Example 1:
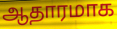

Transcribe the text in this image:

ஆதாரமாக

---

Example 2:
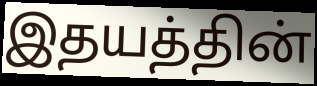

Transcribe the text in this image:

இதயத்தின்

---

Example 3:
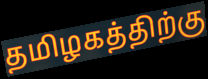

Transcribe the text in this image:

தமிழகத்திற்கு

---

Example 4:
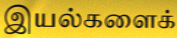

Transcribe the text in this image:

இயல்களைக்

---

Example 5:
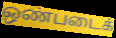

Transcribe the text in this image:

ஒண்படைக்